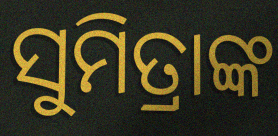
ସୁମିତ୍ରାଙ୍କ